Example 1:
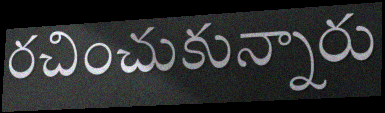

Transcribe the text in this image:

రచించుకున్నారు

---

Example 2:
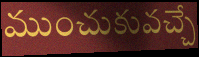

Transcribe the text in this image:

ముంచుకువచ్చే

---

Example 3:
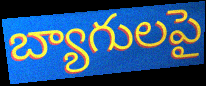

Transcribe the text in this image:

బ్యాగులపై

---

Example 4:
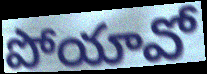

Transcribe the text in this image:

పోయావో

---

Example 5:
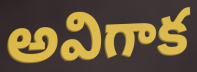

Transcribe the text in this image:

అవిగాక